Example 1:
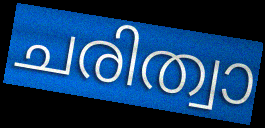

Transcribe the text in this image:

ചരിത്വാ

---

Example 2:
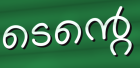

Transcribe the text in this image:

ടെന്റെ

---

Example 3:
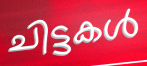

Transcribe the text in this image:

ചിട്ടകൾ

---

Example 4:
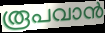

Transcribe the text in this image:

രൂപവാൻ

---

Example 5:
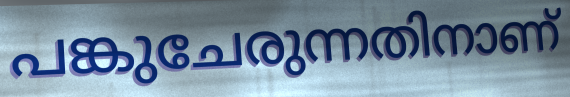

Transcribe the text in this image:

പങ്കുചേരുന്നതിനാണ്